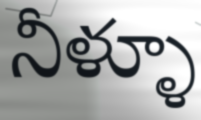
నీళ్ళూ